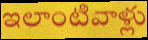
ఇలాంటివాళ్లు